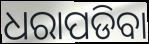
ଧରାପଡିବା